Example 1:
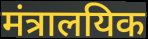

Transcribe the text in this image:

मंत्रालयिक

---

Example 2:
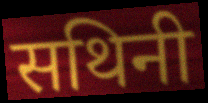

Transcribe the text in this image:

सथिनी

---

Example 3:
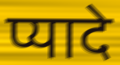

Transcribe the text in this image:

प्यादे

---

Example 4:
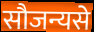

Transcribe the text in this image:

सौजन्यसे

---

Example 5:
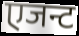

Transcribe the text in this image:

एजन्ट